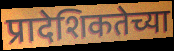
प्रादेशिकतेच्या